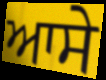
ਆਸੇ